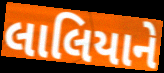
લાલિયાને